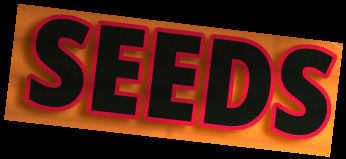
SEEDS